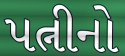
પત્નીનો